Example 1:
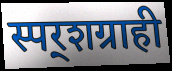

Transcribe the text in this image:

स्पर्शग्राही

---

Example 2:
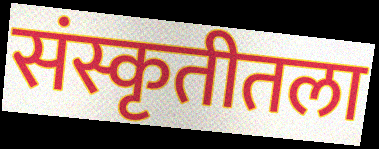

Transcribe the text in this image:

संस्कृतीतला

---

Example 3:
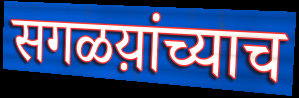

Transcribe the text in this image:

सगळय़ांच्याच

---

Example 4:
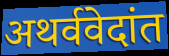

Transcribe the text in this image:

अथर्ववेदांत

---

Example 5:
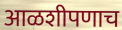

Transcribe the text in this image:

आळशीपणाच